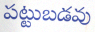
పట్టుబడవు